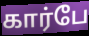
கார்பே